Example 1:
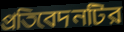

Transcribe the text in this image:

প্রতিবেদনটির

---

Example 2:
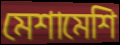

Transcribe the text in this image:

মেশামেশি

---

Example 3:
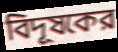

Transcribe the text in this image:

বিদূষকের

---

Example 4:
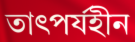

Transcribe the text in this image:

তাৎপর্যহীন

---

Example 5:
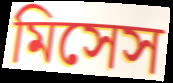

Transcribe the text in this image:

মিসেস